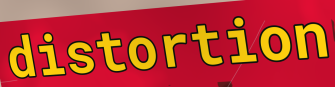
distortion